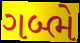
ગબ્ભે